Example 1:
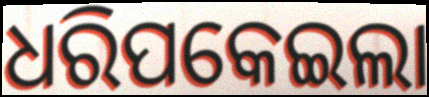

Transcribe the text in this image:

ଧରିପକେଇଲା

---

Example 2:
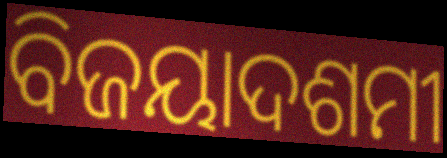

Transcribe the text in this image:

ବିଜୟାଦଶମୀ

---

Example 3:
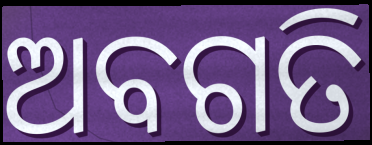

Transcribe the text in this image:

ଅବଗତି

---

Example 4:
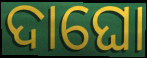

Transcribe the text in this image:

ଦାଘୋ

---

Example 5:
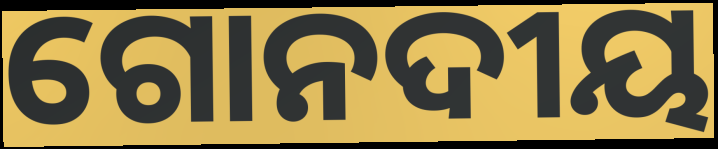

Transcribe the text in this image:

ଗୋନଦୀୟ